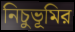
নিচুভূমির